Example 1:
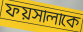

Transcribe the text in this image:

ফয়সালাকে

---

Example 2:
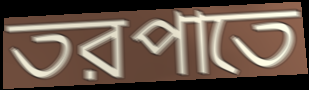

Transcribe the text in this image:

তরপাতে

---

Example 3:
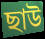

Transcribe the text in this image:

ছাউ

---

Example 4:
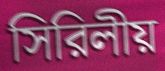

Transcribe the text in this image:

সিরিলীয়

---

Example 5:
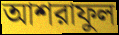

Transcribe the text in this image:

আশরাফুল